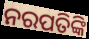
ନରପତିଙ୍କି